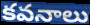
కవనాలు